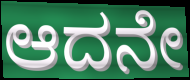
ಆದನೇ